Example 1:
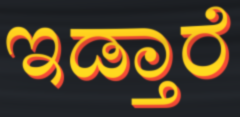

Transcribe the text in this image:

ಇಡ್ತಾರೆ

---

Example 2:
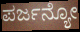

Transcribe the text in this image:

ಪರ್ಜನ್ಯೋ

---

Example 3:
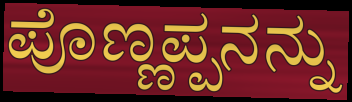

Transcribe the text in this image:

ಪೊಣ್ಣಪ್ಪನನ್ನು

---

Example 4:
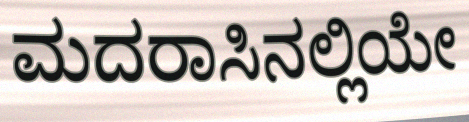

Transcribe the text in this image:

ಮದರಾಸಿನಲ್ಲಿಯೇ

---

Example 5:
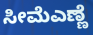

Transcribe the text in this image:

ಸೀಮೆಎಣ್ಣೆ